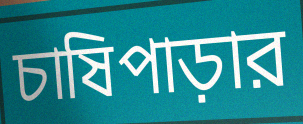
চাষিপাড়ার